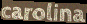
carolina